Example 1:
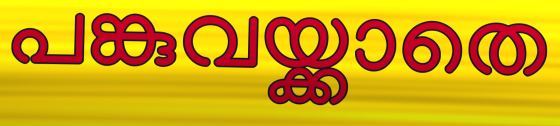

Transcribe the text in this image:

പങ്കുവയ്ക്കാതെ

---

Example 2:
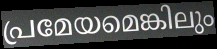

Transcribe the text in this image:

പ്രമേയമെങ്കിലും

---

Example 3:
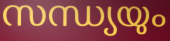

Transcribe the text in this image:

സന്ധ്യയും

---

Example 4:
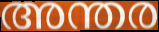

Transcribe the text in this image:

അന്തര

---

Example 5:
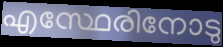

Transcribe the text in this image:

എസ്ഥേരിനോടു